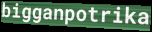
bigganpotrika